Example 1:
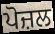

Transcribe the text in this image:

ਪੋਜ਼ਲ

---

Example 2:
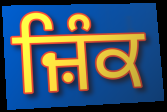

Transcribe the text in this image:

ਜ਼ਿੰਕ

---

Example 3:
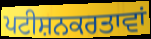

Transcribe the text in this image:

ਪਟੀਸ਼ਨਕਰਤਾਵਾਂ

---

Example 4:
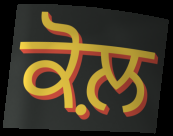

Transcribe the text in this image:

ਕੋਲ਼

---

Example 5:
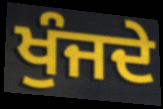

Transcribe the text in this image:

ਖੁੰਜਦੇ